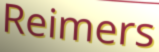
Reimers